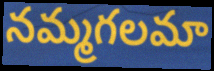
నమ్మగలమా